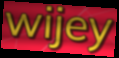
wijey